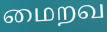
மைறவ